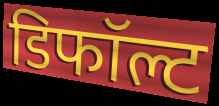
डिफॉल्ट